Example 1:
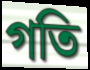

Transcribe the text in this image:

গতি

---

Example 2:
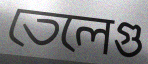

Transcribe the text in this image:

তেলেগু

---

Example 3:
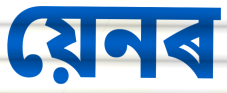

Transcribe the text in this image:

য়েনৰ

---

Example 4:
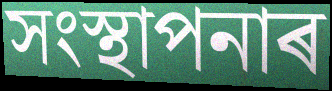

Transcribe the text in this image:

সংস্থাপনাৰ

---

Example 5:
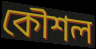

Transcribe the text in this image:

কৌশল